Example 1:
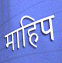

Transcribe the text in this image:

माहिप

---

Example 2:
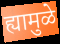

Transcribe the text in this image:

ह्यामुळे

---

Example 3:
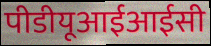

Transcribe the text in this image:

पीडीयूआईआईसी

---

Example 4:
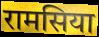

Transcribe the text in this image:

रामसिया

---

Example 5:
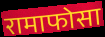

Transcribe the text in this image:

रामाफोसा